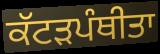
ਕੱਟੜਪੰਥੀਤਾ